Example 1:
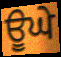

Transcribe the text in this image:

ਊਘੇ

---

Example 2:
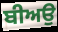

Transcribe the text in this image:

ਬੀਅਉ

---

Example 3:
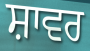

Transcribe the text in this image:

ਸ਼ਾਵਰ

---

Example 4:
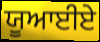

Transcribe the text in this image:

ਯੂਆਈਏ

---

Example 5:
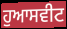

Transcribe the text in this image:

ਹੁਆਸਵੀਟ